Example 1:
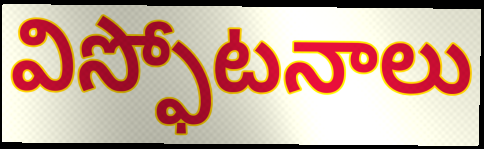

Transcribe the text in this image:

విస్ఫోటనాలు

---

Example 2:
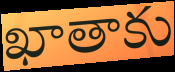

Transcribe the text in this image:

ఖాతాకు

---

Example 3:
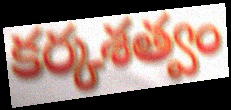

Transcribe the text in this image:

కర్కశత్వం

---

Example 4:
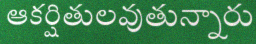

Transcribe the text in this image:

ఆకర్షితులవుతున్నారు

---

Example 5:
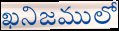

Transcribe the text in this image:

ఖనిజములో